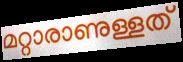
മറ്റാരാണുള്ളത്